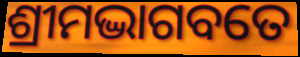
ଶ୍ରୀମଦ୍ଭାଗବତେ